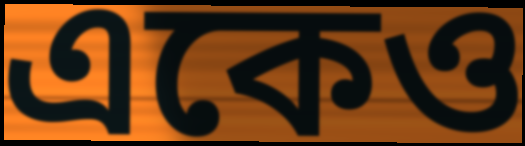
একেও